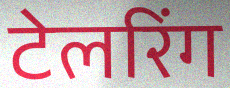
टेलरिंग